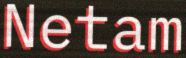
Netam